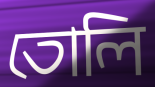
তোলি